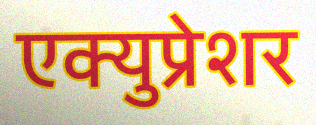
एक्युप्रेशर